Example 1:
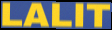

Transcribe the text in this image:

LALIT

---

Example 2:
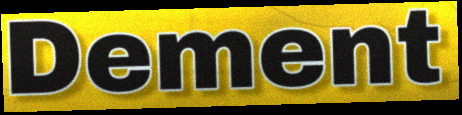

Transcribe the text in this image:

Dement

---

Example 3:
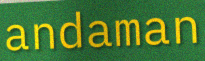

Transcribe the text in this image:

andaman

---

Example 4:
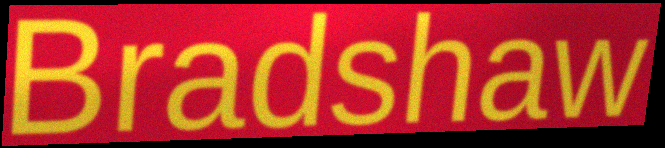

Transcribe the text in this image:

Bradshaw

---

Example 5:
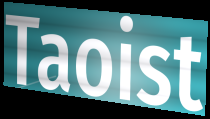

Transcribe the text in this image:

Taoist